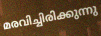
മരവിച്ചിരിക്കുന്നു